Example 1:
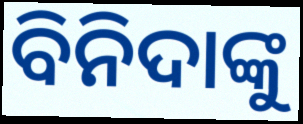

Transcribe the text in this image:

ବିନିଦାଙ୍କୁ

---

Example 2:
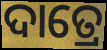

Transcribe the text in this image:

ଦାତ୍ରେ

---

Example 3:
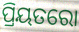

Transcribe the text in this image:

ପ୍ରିୟତରୋ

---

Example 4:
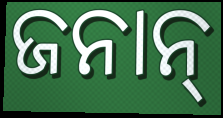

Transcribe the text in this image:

ଜନାନ୍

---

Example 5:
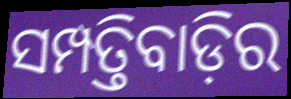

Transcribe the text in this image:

ସମ୍ପତ୍ତିବାଡ଼ିର